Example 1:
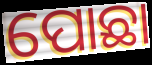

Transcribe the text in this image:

ପୋଛା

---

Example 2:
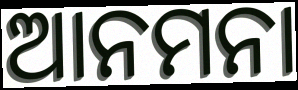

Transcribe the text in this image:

ଆନମନା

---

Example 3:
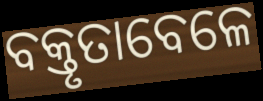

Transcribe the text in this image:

ବକ୍ତୃତାବେଳେ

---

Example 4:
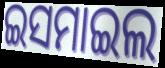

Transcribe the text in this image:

ଇସମାଇଲ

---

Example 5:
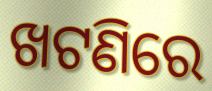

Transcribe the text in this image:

ଖଟଣିରେ